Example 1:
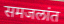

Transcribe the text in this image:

समजलांत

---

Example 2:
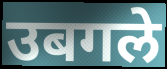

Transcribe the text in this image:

उबगले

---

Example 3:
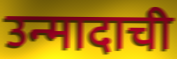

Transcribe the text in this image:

उन्मादाची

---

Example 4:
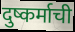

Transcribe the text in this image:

दुष्कर्माची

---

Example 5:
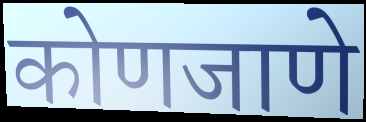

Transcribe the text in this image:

कोणजाणे